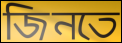
জিনতে